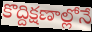
కొద్దిక్షణాల్లోనే